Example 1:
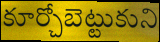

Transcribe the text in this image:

కూర్చోబెట్టుకుని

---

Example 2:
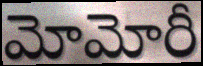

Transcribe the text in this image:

మోమోరీ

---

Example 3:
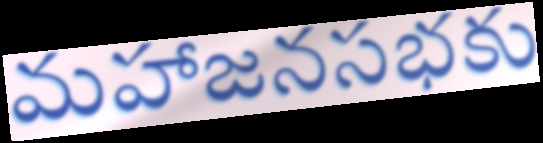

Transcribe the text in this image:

మహాజనసభకు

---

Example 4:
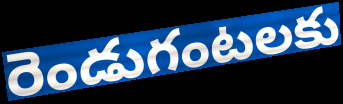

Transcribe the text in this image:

రెండుగంటలకు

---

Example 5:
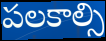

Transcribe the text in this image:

పలకాల్సి